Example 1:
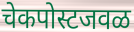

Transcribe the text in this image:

चेकपोस्टजवळ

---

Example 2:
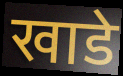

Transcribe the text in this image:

खाडे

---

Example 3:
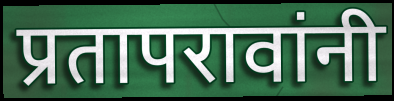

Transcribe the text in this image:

प्रतापरावांनी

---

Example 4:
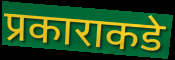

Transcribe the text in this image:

प्रकाराकडे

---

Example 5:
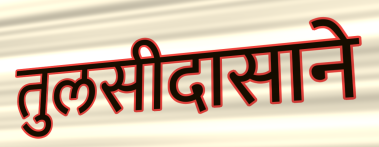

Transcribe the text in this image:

तुलसीदासाने